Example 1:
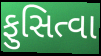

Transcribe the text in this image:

ફુસિત્વા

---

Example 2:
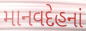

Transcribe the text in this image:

માનવદેહનાં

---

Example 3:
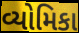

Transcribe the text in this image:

વ્યોમિકા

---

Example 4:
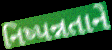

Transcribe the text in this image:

નિષ્પન્નતાને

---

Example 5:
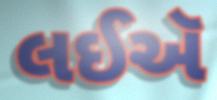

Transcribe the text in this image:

લઈઍ